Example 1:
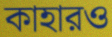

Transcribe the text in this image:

কাহারও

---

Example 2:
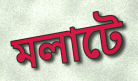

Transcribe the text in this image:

মলাটে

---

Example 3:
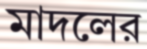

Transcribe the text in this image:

মাদলের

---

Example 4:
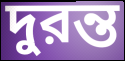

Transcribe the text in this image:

দুরন্ত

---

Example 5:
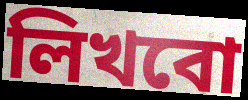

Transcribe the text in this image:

লিখবো